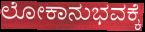
ಲೋಕಾನುಭವಕ್ಕೆ